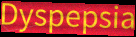
Dyspepsia